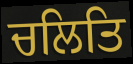
ਚਲਿਤਿ